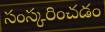
సంస్కరించడం